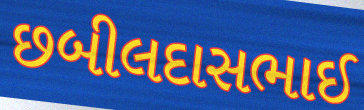
છબીલદાસભાઈ